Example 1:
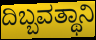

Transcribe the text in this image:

ದಿಬ್ಬವತ್ಥಾನಿ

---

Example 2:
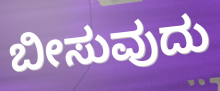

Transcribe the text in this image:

ಬೀಸುವುದು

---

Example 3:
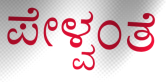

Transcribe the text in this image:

ಪೇಳ್ವಂತೆ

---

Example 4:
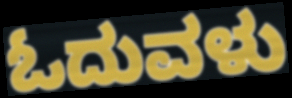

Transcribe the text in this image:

ಓದುವಳು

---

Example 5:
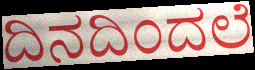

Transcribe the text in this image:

ದಿನದಿಂದಲೆ